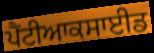
ਪੈਂਟੀਆਕਸਾਈਡ